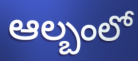
ఆల్బంలో